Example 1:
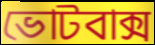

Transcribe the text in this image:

ভোটবাক্স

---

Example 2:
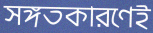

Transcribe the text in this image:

সঙ্গতকারণেই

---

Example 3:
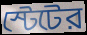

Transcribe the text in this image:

স্টেটের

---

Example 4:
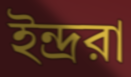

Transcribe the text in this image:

ইন্দ্ররা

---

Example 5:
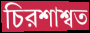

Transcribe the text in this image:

চিরশাশ্বত